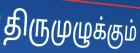
திருமுழுக்கும்